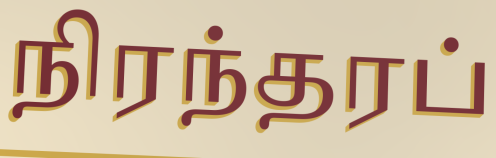
நிரந்தரப்